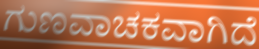
ಗುಣವಾಚಕವಾಗಿದೆ